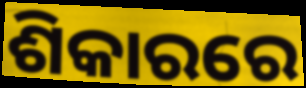
ଶିକାରରେ